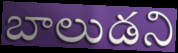
బాలుడని